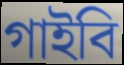
গাইবি